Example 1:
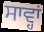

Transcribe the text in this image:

ਸਾਵ੍ਹਾਂ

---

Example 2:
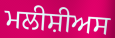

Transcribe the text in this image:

ਮਲੀਸ਼ੀਅਸ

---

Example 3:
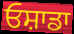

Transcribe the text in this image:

ਓਸ਼ਾਡਾ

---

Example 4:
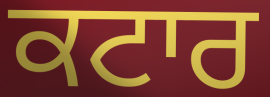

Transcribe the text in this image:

ਕਟਾਰ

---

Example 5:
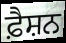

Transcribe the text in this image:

ਫ਼ੈਸ਼ਨ